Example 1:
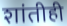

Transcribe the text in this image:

शांतीही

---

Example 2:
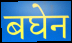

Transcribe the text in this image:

बघेन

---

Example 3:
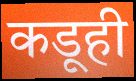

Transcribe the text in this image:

कडूही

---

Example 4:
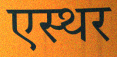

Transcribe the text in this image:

एस्थर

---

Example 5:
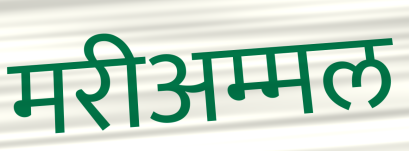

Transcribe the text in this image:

मरीअम्मल